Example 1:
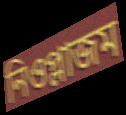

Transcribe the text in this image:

নিওপ্লাজম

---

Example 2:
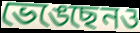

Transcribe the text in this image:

ভেঙেছেনও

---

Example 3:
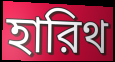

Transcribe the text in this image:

হারিথ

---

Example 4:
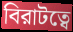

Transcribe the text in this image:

বিরাটত্বে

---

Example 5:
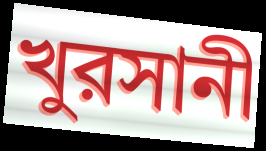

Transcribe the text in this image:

খুরসানী